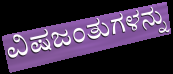
ವಿಷಜಂತುಗಳನ್ನು